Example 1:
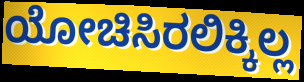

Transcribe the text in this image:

ಯೋಚಿಸಿರಲಿಕ್ಕಿಲ್ಲ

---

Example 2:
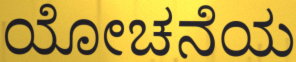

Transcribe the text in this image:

ಯೋಚನೆಯ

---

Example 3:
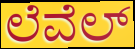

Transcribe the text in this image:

ಲೆವೆಲ್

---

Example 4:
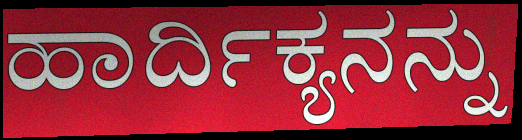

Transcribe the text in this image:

ಹಾರ್ದಿಕ್ಯನನ್ನು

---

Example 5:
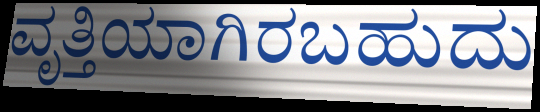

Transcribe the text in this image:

ವೃತ್ತಿಯಾಗಿರಬಹುದು